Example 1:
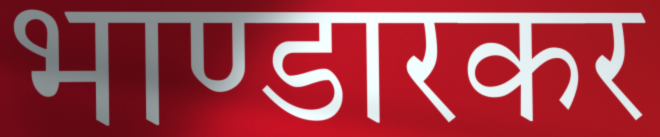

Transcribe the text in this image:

भाण्डारकर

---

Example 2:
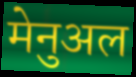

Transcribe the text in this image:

मेनुअल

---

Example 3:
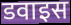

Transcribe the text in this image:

डवाइस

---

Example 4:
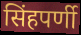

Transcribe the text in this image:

सिंहपर्णी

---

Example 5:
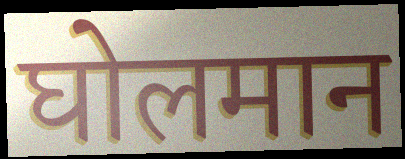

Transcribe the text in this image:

घोलमान